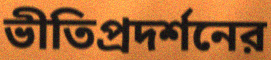
ভীতিপ্রদর্শনের